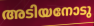
അടിയനോടു